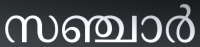
സഞ്ചാർ